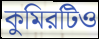
কুমিরটিও